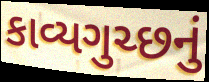
કાવ્યગુચ્છનું